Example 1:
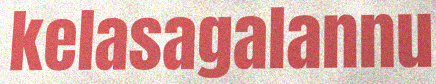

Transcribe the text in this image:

kelasagalannu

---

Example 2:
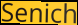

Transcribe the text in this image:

Senich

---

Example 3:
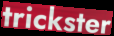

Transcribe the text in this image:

trickster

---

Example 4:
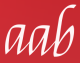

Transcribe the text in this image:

aab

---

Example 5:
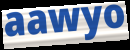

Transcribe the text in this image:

aawyo